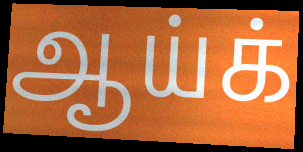
ஆய்க்